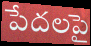
పేదలపై